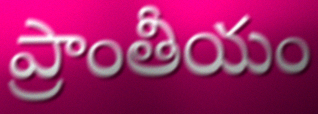
ప్రాంతీయం